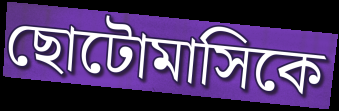
ছোটোমাসিকে